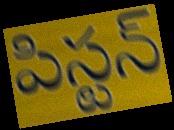
పిస్టన్